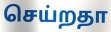
செய்றதா